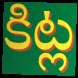
కిట్ల